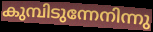
കുമ്പിടുന്നേനിന്നു